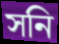
সনি